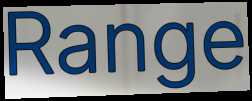
Range